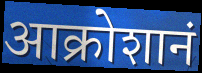
आक्रोशानं